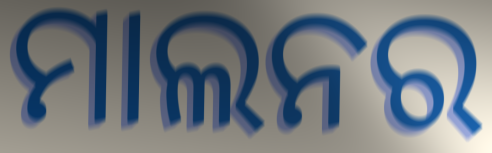
ମାଲନର